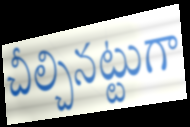
చీల్చినట్టుగా